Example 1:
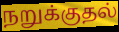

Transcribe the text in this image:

நறுக்குதல்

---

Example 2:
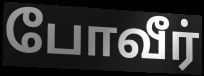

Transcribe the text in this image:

போவீர்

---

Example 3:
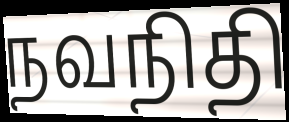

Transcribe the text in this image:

நவநிதி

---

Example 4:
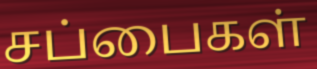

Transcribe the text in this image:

சப்பைகள்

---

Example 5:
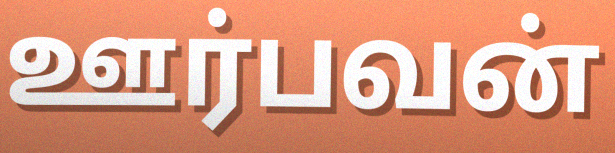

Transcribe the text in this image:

ஊர்பவன்